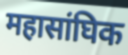
महासांघिक